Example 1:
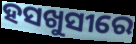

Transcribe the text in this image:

ହସଖୁସୀରେ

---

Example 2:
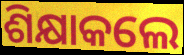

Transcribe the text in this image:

ଶିକ୍ଷାକଲେ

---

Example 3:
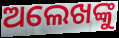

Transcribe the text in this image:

ଅଲେଖଙ୍କୁ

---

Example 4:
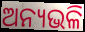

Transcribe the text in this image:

ଅନ୍ୟଭଳି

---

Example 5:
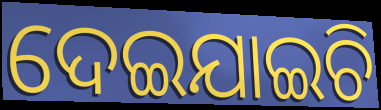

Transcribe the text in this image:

ଦେଇଯାଇଚି